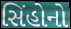
સિંહોનો